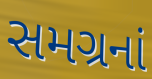
સમગ્રનાં